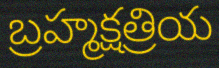
బ్రహ్మక్షత్రియ